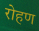
रोहण